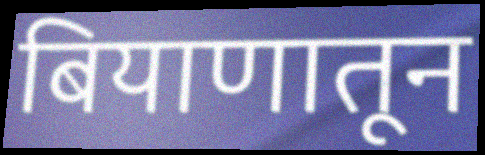
बियाणातून